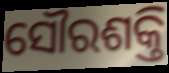
ସୌରଶକ୍ତି